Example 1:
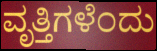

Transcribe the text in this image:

ವೃತ್ತಿಗಳೆಂದು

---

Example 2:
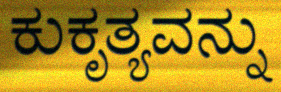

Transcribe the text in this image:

ಕುಕೃತ್ಯವನ್ನು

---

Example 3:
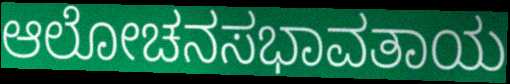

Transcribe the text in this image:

ಆಲೋಚನಸಭಾವತಾಯ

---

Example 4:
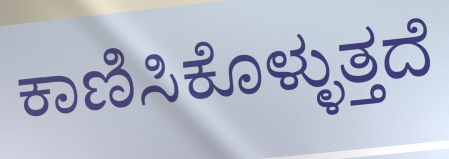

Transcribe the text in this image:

ಕಾಣಿಸಿಕೊಳ್ಳುತ್ತದೆ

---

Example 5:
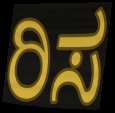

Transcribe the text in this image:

ರಿಸ